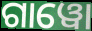
ଗାୱୋ